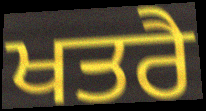
ਖਤਰੈ